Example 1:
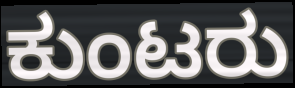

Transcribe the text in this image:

ಕುಂಟರು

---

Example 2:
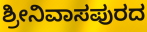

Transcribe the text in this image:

ಶ್ರೀನಿವಾಸಪುರದ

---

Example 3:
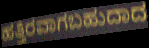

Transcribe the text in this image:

ಹತ್ತಿರವಾಗಬಹುದಾದ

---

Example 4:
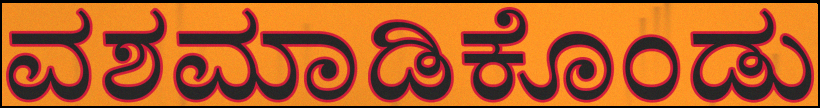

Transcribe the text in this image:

ವಶಮಾಡಿಕೊಂಡು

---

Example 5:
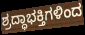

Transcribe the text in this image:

ಶ್ರದ್ಧಾಭಕ್ತಿಗಳಿಂದ